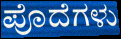
ಪೊದೆಗಳು